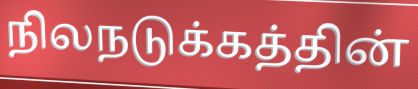
நிலநடுக்கத்தின்